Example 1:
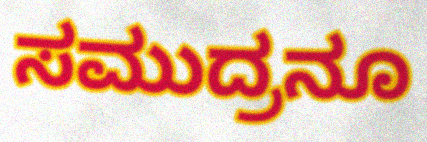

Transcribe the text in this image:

ಸಮುದ್ರನೂ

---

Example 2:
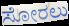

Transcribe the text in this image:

ಸೋರಲು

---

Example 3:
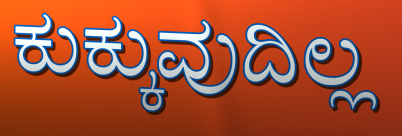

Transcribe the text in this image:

ಕುಕ್ಕುವುದಿಲ್ಲ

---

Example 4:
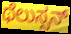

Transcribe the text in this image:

ಥೆಲುಸ್ಸನ್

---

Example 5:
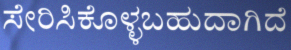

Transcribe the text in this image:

ಸೇರಿಸಿಕೊಳ್ಳಬಹುದಾಗಿದೆ